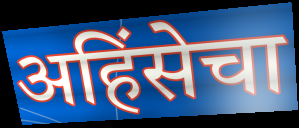
अहिंसेचा